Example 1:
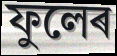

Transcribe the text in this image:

ফুলেৰ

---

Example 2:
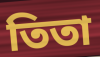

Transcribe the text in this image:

তিতা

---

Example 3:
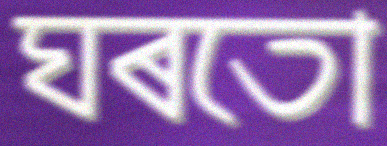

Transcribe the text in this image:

ঘৰতো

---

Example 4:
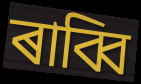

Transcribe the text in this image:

ৰাব্বি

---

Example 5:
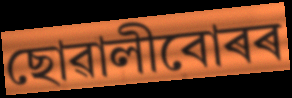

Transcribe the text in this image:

ছোৱালীবোৰৰ